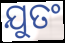
ଯୁତଂ